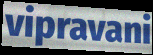
vipravani